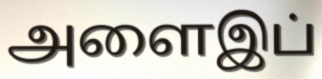
அளைஇப்